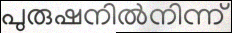
പുരുഷനിൽനിന്ന്